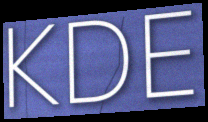
KDE